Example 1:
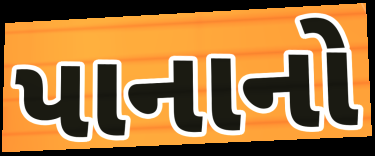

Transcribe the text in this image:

પાનાનો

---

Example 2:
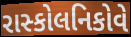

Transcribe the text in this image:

રાસ્કોલનિકોવે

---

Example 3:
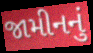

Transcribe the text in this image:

જામીનનું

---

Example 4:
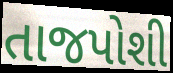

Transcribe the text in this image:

તાજપોશી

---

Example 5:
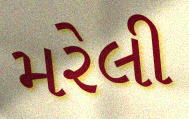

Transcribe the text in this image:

મરેલી